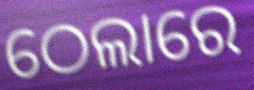
ଠେଲାରେ